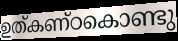
ഉത്കണ്ഠകൊണ്ടു